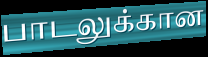
பாடலுக்கான